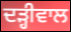
ਦੜ੍ਹੀਵਾਲ